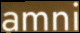
amni